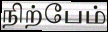
நிற்பேம்